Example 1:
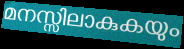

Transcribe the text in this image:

മനസ്സിലാകുകയും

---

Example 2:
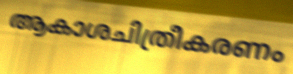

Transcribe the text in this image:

ആകാശചിത്രീകരണം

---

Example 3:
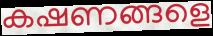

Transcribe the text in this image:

കഷണങ്ങളെ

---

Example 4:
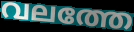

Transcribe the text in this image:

വലത്തേ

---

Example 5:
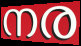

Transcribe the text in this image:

നര